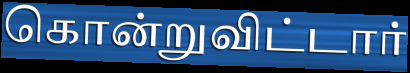
கொன்றுவிட்டார்